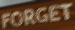
FORGET